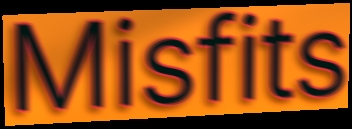
Misfits